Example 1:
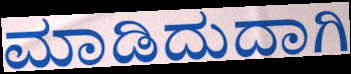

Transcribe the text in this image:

ಮಾಡಿದುದಾಗಿ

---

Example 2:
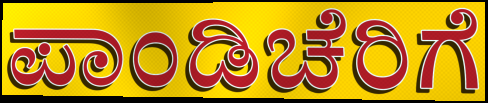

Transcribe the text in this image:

ಪಾಂಡಿಚೆರಿಗೆ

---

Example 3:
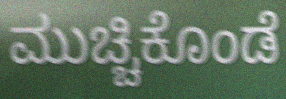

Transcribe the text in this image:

ಮುಚ್ಚಿಕೊಂಡೆ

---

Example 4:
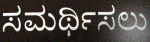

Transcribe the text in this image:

ಸಮರ್ಥಿಸಲು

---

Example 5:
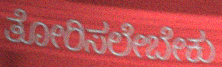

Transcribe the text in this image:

ತೋರಿಸಲೇಬೇಕು